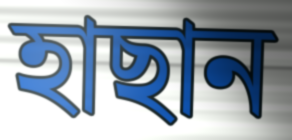
হাছান